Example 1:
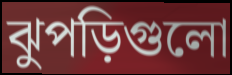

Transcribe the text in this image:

ঝুপড়িগুলো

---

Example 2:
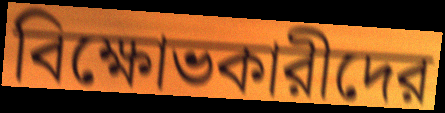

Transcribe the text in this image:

বিক্ষোভকারীদের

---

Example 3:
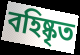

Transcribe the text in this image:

বহিষ্কৃত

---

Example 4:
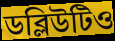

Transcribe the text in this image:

ডব্লিউটিও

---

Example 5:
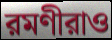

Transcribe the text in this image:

রমণীরাও